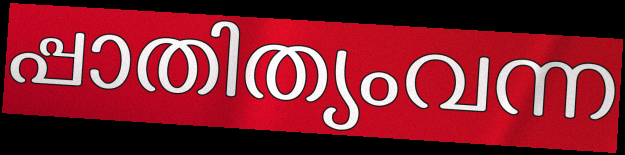
പ്പാതിത്യംവന്ന